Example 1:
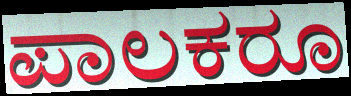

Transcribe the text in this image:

ಪಾಲಕರೂ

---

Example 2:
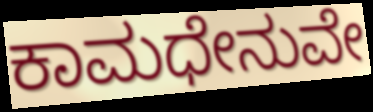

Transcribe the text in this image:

ಕಾಮಧೇನುವೇ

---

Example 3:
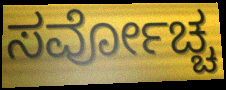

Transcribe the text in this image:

ಸರ್ವೋಚ್ಚ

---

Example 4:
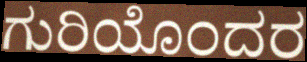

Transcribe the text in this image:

ಗುರಿಯೊಂದರ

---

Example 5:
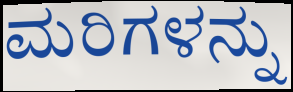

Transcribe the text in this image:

ಮರಿಗಳನ್ನು